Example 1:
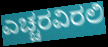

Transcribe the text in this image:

ಎಚ್ಚರವಿರಲಿ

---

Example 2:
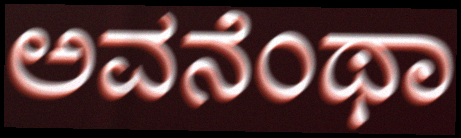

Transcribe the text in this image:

ಅವನೆಂಥಾ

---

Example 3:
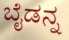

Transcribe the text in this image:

ಬೈಡನ್ನ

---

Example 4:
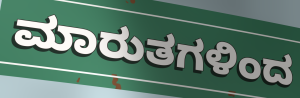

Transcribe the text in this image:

ಮಾರುತಗಳಿಂದ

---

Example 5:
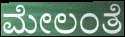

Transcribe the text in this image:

ಮೇಲಂತೆ